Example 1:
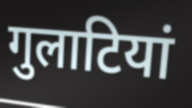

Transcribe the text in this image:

गुलाटियां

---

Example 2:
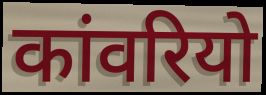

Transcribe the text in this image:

कांवरियो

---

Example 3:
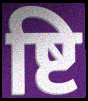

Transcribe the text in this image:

ष्टि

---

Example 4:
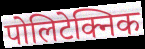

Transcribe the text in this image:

पोलिटेक्निक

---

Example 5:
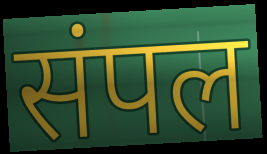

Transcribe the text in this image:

संपल